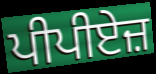
ਪੀਪੀਏਜ਼